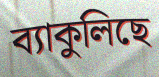
ব্যাকুলিছে